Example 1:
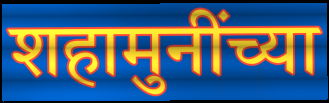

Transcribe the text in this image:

शहामुनींच्या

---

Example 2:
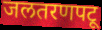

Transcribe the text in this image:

जलतरणपटू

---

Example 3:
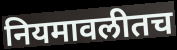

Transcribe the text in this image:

नियमावलीतच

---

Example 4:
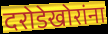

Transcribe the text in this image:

दरोडेखोरांना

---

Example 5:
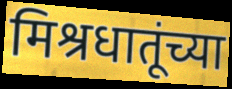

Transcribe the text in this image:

मिश्रधातूंच्या